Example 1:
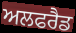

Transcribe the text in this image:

ਅਲਫਰੈਡ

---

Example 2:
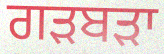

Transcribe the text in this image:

ਗੜਬੜਾ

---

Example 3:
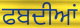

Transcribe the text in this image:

ਫਬਦੀਆਂ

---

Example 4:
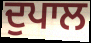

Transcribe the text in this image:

ਦੁਪਾਲ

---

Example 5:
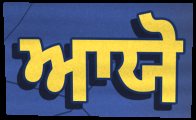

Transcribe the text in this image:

ਆਯੋ